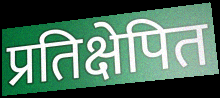
प्रतिक्षेपित